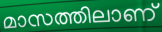
മാസത്തിലാണ്